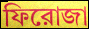
ফিরোজা